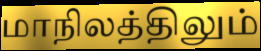
மாநிலத்திலும்